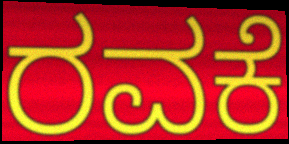
ರವಕೆ